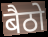
बैठो